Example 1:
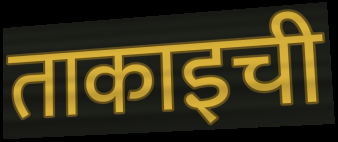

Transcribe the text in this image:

ताकाइची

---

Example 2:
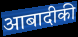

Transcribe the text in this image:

आबादीकी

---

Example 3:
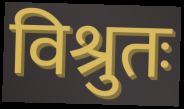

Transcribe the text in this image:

विश्रुतः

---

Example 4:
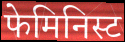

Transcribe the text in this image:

फेमिनिस्ट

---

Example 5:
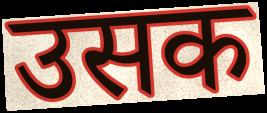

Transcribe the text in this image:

उसक